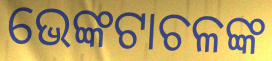
ଭେଙ୍କଟାଚଳଙ୍କ